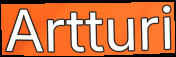
Artturi